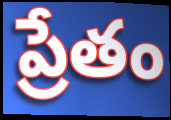
ప్రేతం